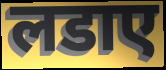
लडाए